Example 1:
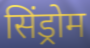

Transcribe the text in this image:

सिंड्रोम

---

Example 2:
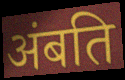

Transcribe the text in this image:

अंबति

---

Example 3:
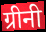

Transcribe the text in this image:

ग्रीनी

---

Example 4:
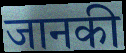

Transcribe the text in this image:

जानकी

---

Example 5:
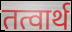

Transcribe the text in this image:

तत्वार्थ